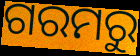
ଗରମରୁ